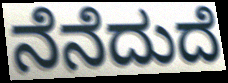
ನೆನೆದುದೆ